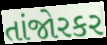
તાંજોરકર